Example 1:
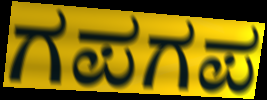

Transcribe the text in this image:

ಗಪಗಪ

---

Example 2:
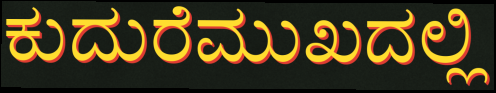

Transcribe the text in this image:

ಕುದುರೆಮುಖದಲ್ಲಿ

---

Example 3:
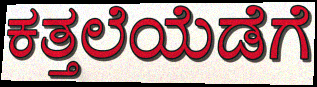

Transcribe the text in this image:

ಕತ್ತಲೆಯೆಡೆಗೆ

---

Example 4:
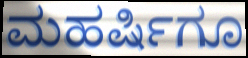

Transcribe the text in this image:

ಮಹರ್ಷಿಗೂ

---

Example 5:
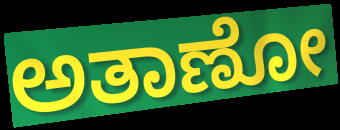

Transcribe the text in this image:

ಅತಾಣೋ